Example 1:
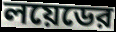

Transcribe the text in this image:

লয়েডের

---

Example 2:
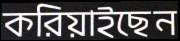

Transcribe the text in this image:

করিয়াইছেন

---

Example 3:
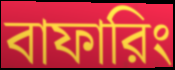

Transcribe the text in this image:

বাফারিং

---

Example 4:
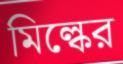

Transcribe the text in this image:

মিল্কের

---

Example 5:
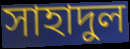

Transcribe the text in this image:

সাহাদুল